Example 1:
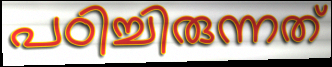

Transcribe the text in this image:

പഠിച്ചിരുന്നത്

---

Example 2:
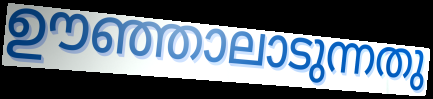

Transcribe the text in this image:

ഊഞ്ഞാലാടുന്നതു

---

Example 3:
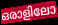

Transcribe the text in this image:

ഒരാളിലോ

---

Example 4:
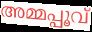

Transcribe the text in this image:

അമ്മപ്പൂവ്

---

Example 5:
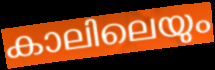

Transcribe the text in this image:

കാലിലെയും